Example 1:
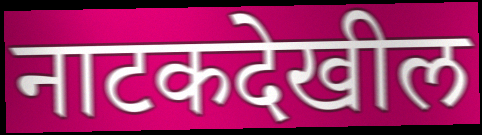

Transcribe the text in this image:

नाटकदेखील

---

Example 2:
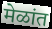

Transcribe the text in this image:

मेळांत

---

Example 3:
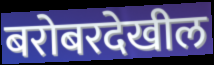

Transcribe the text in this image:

बरोबरदेखील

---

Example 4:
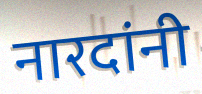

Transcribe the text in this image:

नारदांनी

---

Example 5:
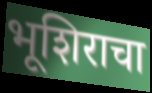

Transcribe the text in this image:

भूशिराचा